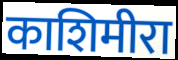
काशिमीरा